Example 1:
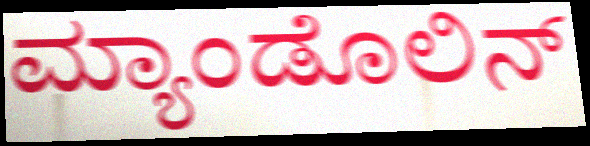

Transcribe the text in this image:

ಮ್ಯಾಂಡೊಲಿನ್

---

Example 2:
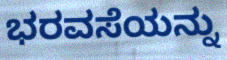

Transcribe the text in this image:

ಭರವಸೆಯನ್ನು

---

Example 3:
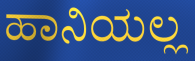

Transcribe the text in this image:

ಹಾನಿಯಲ್ಲ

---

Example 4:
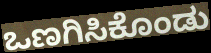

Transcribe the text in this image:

ಒಣಗಿಸಿಕೊಂಡು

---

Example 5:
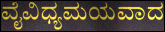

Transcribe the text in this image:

ವೈವಿಧ್ಯಮಯವಾದ